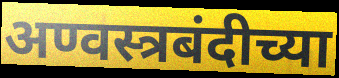
अण्वस्त्रबंदीच्या